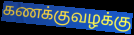
கணக்குவழக்கு